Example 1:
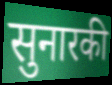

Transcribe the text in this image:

सुनारकी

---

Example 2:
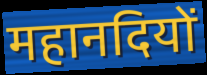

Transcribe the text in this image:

महानदियों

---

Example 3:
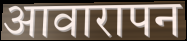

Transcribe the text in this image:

आवारापन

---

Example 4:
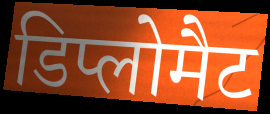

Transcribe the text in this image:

डिप्लोमैट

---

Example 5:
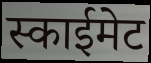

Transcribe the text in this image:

स्काईमेट